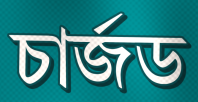
চার্জড